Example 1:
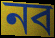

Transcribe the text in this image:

নব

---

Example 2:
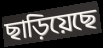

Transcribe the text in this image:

ছাড়িয়েছে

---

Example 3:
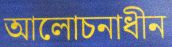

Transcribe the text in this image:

আলোচনাধীন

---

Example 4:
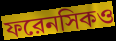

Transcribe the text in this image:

ফরেনসিকও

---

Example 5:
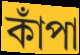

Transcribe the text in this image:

কাঁপা